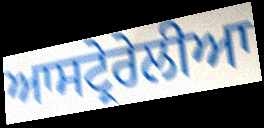
ਆਸਟ੍ਰੇਰੇਲੀਆ